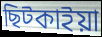
ছিট্কাইয়া